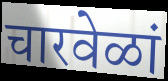
चारवेळां